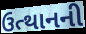
ઉત્થાનની